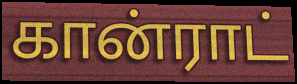
கான்ராட்